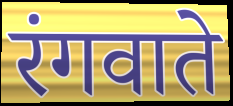
रंगवाते